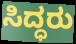
ಸಿದ್ಧರು